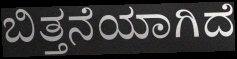
ಬಿತ್ತನೆಯಾಗಿದೆ